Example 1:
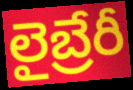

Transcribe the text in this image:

లైబ్రేరీ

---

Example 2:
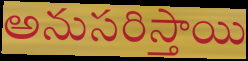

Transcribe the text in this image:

అనుసరిస్తాయి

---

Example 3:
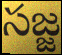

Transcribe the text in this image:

సజ్జ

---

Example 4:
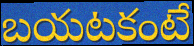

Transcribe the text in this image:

బయటకంటే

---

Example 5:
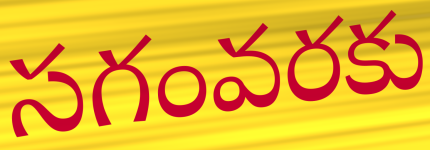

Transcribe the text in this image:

సగంవరకు